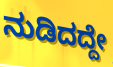
ನುಡಿದದ್ದೇ